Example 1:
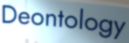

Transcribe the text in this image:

Deontology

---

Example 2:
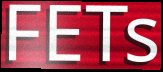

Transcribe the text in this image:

FETs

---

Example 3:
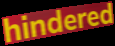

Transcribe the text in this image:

hindered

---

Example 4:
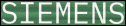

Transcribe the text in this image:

SIEMENS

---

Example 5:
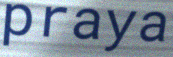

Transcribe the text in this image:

praya